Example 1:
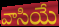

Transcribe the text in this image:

వాసియే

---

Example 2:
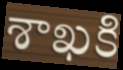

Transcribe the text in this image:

శాఖకి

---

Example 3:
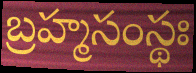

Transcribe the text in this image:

బ్రహ్మసంస్థః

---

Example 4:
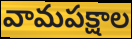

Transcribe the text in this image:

వామపక్షాల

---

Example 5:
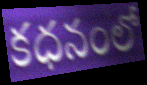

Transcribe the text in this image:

కధనంలో